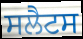
ਸਲੈਟਸ